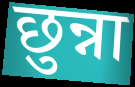
छुन्ना